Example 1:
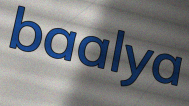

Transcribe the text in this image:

baalya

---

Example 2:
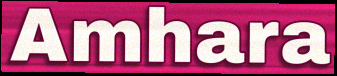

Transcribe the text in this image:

Amhara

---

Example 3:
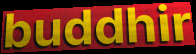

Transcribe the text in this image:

buddhir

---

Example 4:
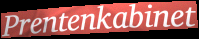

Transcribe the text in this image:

Prentenkabinet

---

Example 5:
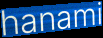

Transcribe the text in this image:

hanami